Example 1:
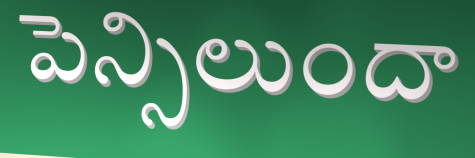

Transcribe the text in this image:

పెన్సిలుందా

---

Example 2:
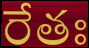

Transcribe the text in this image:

రేతః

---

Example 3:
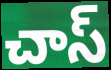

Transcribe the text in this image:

చాస్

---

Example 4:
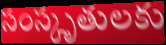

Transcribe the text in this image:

సంస్కృతులకు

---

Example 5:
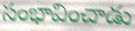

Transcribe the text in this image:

సంభావించాడు